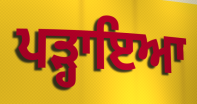
ਪੜ੍ਹਾਇਆ